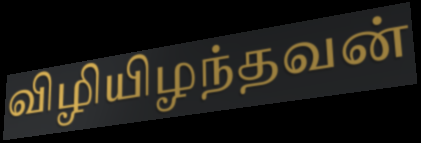
விழியிழந்தவன்